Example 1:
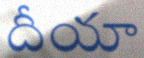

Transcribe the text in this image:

దీయా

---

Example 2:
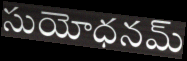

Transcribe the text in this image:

సుయోధనమ్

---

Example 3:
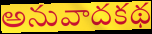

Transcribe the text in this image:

అనువాదకథ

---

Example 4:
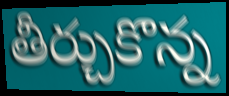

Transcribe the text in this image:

తీర్చుకొన్న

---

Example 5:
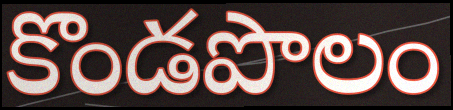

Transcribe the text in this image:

కొండపొలం